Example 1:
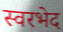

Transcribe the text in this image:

स्वरभेद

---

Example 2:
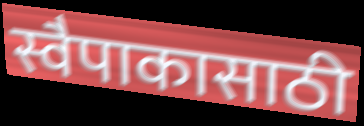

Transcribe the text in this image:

स्वैपाकासाठी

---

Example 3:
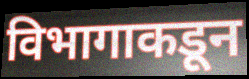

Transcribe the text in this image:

विभागाकडून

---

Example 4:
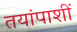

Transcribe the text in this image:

तयांपाशीं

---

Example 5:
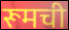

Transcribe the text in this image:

रूमची